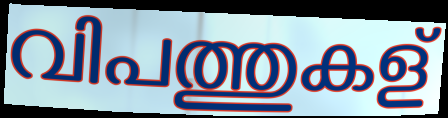
വിപത്തുകള്